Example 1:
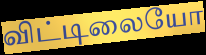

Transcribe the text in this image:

விட்டிலையோ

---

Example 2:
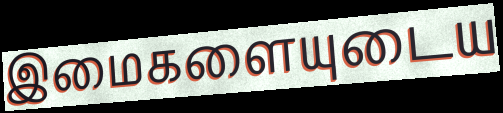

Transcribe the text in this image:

இமைகளையுடைய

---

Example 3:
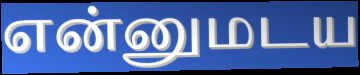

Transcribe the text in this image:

என்னுமடய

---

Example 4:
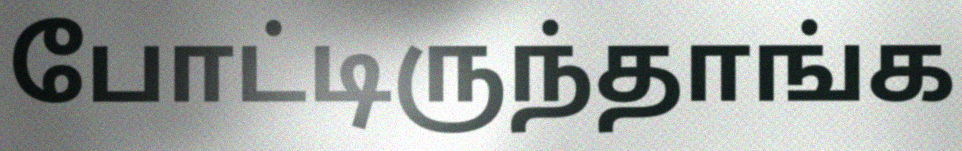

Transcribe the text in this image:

போட்டிருந்தாங்க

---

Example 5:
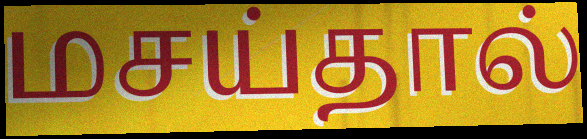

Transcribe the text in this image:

மசய்தால்